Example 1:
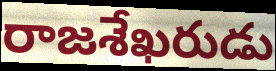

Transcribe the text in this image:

రాజశేఖరుడు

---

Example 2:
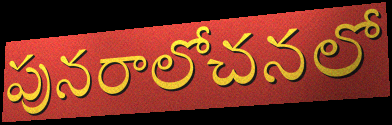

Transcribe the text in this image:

పునరాలోచనలో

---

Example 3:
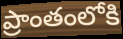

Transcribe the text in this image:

ప్రాంతంలోకి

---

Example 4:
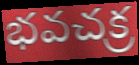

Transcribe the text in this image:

భవచక్ర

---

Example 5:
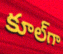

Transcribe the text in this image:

కూల్‌గా